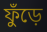
ফুঁড়ে